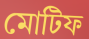
মোটিফ